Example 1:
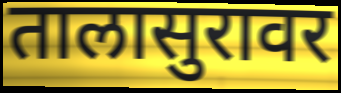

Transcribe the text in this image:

तालासुरावर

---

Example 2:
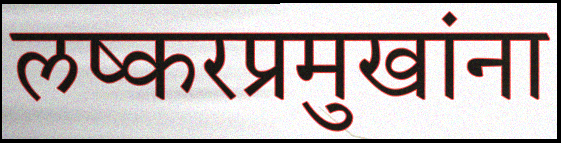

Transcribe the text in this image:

लष्करप्रमुखांना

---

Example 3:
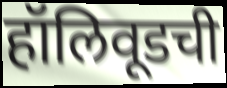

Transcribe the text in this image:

हॉलिवूडची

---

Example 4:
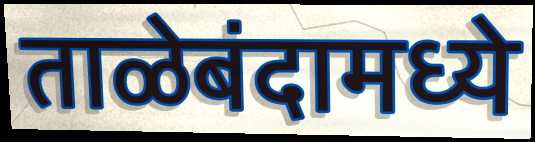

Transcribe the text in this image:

ताळेबंदामध्ये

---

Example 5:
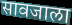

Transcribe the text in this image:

सावजाला